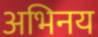
अभिनय